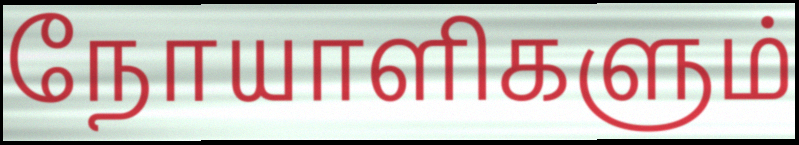
நோயாளிகளும்